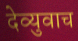
देव्युवाच